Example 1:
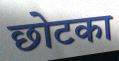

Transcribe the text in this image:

छोटका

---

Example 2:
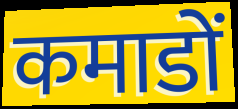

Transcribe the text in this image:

कमाडों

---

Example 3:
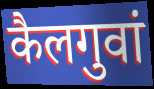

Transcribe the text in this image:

कैलगुवां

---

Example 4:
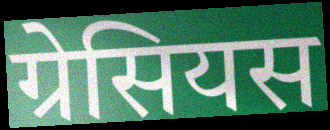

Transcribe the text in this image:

ग्रेसियस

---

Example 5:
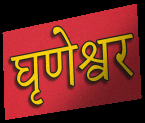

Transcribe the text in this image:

घृणेश्वर